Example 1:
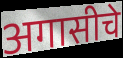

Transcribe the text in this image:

अगासीचे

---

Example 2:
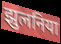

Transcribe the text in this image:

झुलनिया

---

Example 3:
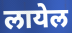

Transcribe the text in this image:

लायेल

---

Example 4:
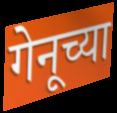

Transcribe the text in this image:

गेनूच्या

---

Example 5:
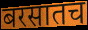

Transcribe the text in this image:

बरसातच